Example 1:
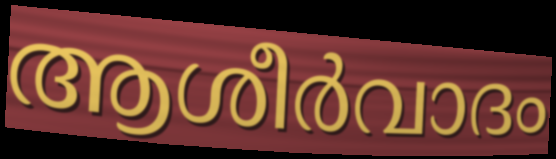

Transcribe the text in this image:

ആശീർവാദം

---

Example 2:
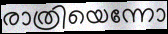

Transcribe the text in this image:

രാത്രിയെന്നോ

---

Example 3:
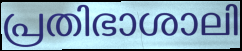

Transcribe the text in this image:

പ്രതിഭാശാലി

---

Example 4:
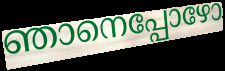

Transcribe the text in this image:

ഞാനെപ്പോഴോ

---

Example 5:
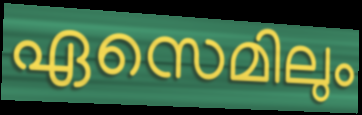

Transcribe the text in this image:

ഏസെമിലും